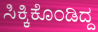
ಸಿಕ್ಕಿಕೊಂಡಿದ್ದ